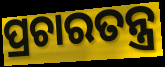
ପ୍ରଚାରତନ୍ତ୍ର